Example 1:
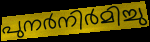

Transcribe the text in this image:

പുനർനിർമിച്ചു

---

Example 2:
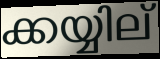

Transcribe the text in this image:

ക്കയ്യില്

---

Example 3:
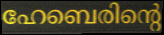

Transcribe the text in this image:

ഹേബെരിന്റെ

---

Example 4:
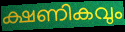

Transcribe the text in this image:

ക്ഷണികവും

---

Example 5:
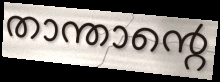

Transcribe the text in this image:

താന്താന്റെ